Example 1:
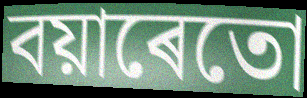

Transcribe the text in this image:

বয়াৰেতো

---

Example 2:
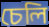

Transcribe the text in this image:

চেলি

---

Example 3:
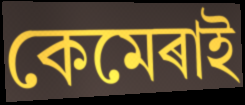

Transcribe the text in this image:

কেমেৰাই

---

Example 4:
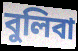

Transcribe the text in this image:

বুলিবা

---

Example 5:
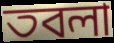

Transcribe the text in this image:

তবলা